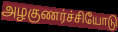
அழகுணர்ச்சியோடு